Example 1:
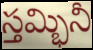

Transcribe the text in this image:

స్తమ్భినీ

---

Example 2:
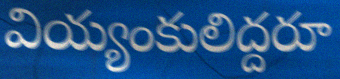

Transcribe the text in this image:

వియ్యంకులిద్దరూ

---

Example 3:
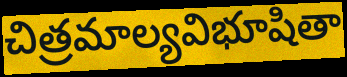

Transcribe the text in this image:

చిత్రమాల్యవిభూషితా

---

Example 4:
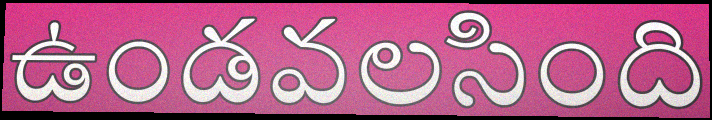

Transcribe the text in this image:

ఉండవలసింది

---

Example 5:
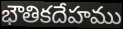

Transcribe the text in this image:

భౌతికదేహము